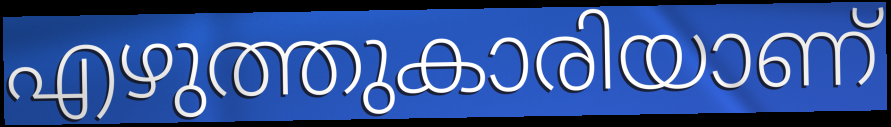
എഴുത്തുകാരിയാണ്